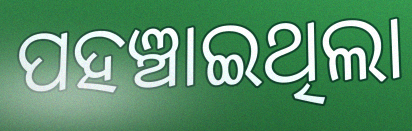
ପହଞ୍ଚାଇଥିଲା